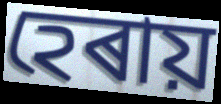
হেৰায়